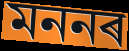
মননৰ